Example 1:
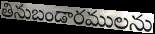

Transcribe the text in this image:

తినుబండారములను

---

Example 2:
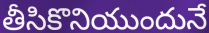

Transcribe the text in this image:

తీసికొనియుందునే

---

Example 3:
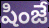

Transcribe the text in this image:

షింజే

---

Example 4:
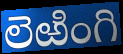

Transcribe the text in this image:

లెఱింగి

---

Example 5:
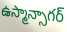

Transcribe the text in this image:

ఉస్మాన్సాగర్